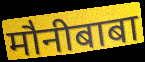
मौनीबाबा